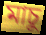
মাচু